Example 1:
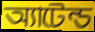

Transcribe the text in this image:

অ্যাটেন্ড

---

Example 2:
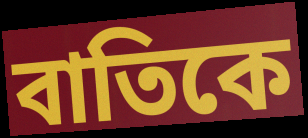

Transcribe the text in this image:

বাতিকে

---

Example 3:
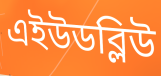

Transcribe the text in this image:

এইউডব্লিউ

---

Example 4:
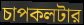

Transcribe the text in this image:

চাপকলটার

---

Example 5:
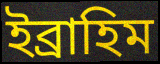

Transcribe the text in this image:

ইব্রাহিম